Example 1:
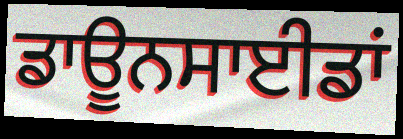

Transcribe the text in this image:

ਡਾਊਨਸਾਈਡਾਂ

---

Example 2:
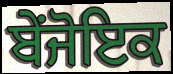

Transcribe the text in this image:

ਬੇਂਜੋਇਕ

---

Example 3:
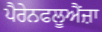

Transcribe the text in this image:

ਪੈਰੇਨਫਲੂਐਂਜ਼ਾ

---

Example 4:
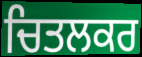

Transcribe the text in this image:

ਚਿਤਲਕਰ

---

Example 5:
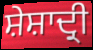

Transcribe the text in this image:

ਸ਼ੇਸ਼ਾਦ੍ਰੀ